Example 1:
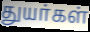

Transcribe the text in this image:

துயர்கள்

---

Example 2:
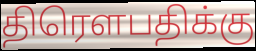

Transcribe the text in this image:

திரௌபதிக்கு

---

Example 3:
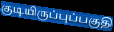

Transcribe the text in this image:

குடியிருப்புப்பகுதி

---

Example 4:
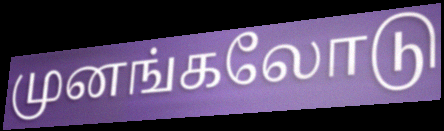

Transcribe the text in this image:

முனங்கலோடு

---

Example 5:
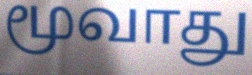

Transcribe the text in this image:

மூவாது